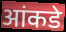
आंकडे